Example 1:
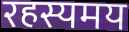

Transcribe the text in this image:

रहस्यमय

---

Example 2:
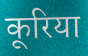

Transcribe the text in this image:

कूरिया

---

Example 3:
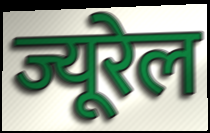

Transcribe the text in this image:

ज्यूरेल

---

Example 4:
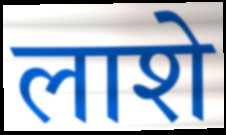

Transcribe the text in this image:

लाशे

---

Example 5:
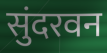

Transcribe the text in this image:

सुंदरवन